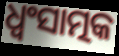
ଧ୍ଵଂସାତ୍ମକ